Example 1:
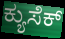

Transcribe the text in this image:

ಕ್ಯುಸೆಕ್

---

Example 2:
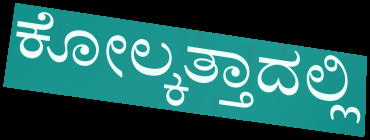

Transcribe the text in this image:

ಕೋಲ್ಕತ್ತಾದಲ್ಲಿ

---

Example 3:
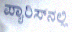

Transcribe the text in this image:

ಪ್ಯಾರಿಸ್‌ನಲ್ಲಿ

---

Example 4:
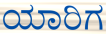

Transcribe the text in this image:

ಯಾರಿಗ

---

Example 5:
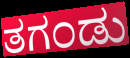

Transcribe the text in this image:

ತಗಂಡು